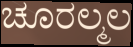
ಚೂರಲ್ಮಲ